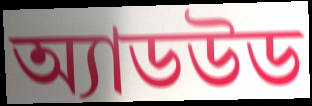
অ্যাডউড